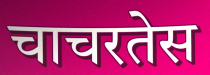
चाचरतेस